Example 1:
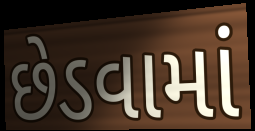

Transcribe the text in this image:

છેડવામાં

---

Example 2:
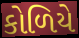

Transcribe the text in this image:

કોળિયે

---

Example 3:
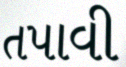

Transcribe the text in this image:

તપાવી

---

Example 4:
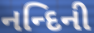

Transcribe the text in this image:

નન્દિની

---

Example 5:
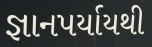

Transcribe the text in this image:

જ્ઞાનપર્યાયથી